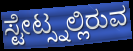
ಸ್ಟೇಟ್ಸ್ನಲ್ಲಿರುವ